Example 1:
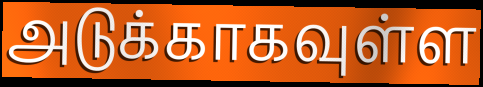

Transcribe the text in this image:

அடுக்காகவுள்ள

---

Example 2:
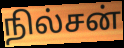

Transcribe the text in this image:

நில்சன்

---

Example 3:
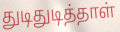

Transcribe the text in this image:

துடிதுடித்தாள்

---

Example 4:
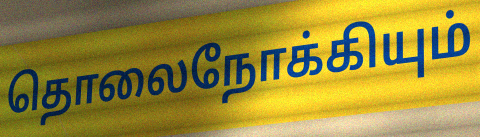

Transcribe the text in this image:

தொலைநோக்கியும்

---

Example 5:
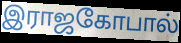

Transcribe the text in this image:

இராஜகோபால்